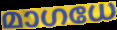
മാഗധേ